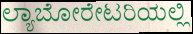
ಲ್ಯಾಬೋರೇಟರಿಯಲ್ಲಿ